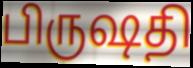
பிருஷதி